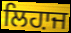
ਲਿਹ਼ਾਜ